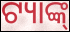
ଟ୍ୟାଙ୍କ୍